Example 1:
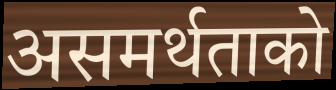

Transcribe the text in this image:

असमर्थताको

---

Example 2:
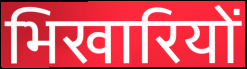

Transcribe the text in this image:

भिखारियों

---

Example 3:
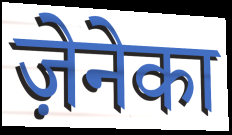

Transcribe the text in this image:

ज़ेनेका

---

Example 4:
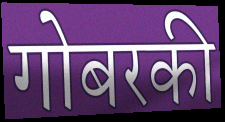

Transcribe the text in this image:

गोबरकी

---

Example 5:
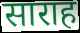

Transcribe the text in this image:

साराह